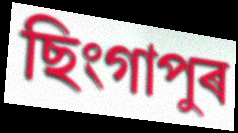
ছিংগাপুৰ